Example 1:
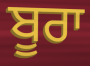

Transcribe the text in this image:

ਬੂਰਾ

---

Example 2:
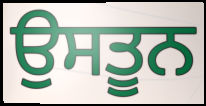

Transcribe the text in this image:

ਉਸਤੂਨ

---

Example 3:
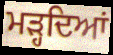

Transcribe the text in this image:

ਮੜ੍ਹਦਿਆਂ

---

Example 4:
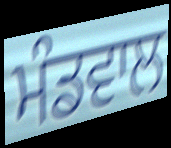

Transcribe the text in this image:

ਮੰਡਵਾਲ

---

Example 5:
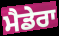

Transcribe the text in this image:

ਮੈਡੇਰਾ